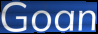
Goan